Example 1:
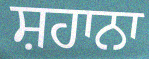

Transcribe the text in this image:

ਸ਼ਹਾਨਾ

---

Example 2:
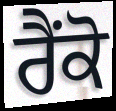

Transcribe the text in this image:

ਰੈਂਕੋ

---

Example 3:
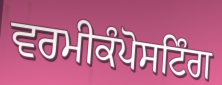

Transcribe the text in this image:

ਵਰਮੀਕੰਪੋਸਟਿੰਗ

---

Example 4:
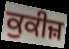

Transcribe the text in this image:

ਕੁਕੀਜ਼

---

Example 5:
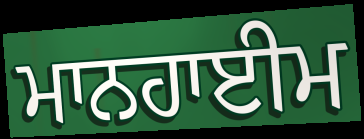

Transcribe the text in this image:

ਮਾਨਹਾਈਮ